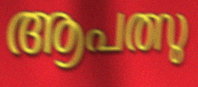
ആപത്സു